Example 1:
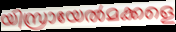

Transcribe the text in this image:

യിസ്രായേൽമക്കളെ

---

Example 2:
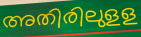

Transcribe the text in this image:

അതിരിലുളള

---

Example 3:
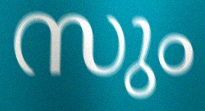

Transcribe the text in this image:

സും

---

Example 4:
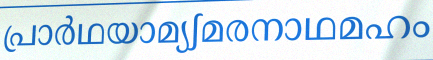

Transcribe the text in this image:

പ്രാർഥയാമ്യഽമരനാഥമഹം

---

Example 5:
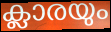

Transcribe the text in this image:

ക്ലാരയും